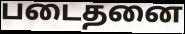
படைதனை